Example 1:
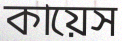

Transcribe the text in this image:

কায়েস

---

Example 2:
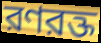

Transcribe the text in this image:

রণরক্ত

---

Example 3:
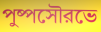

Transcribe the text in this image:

পুষ্পসৌরভে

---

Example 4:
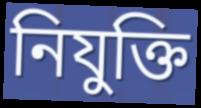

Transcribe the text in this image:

নিযুক্তি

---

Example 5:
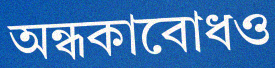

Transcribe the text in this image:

অন্ধকাবোধও